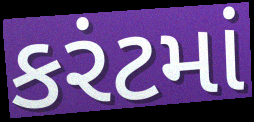
કરંટમાં